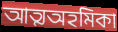
আত্মঅহমিকা